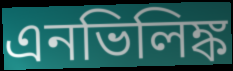
এনভিলিঙ্ক